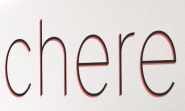
chere